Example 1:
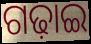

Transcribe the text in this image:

ଗଢ଼ାଇ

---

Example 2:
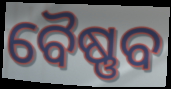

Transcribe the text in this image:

ବୈଷ୍ଣବ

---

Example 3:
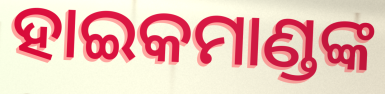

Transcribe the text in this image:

ହାଇକମାଣ୍ଡଙ୍କ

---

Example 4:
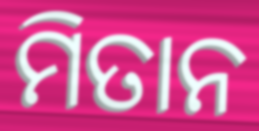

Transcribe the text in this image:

ମିତାନ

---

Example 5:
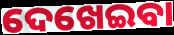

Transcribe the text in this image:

ଦେଖେଇବା